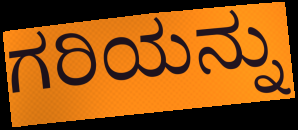
ಗರಿಯನ್ನು